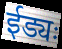
ईड्यः